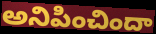
అనిపించిందా